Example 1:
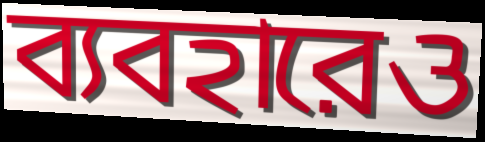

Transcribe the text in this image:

ব্যবহারেও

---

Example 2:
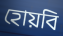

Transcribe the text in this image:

হোয়বি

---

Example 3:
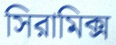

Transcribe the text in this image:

সিরামিক্স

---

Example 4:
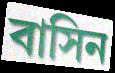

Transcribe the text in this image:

বাসিন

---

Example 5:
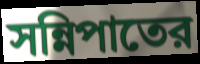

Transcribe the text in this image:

সন্নিপাতের